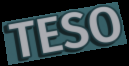
TESO